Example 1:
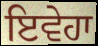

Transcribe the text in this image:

ਇਵੇਹਾ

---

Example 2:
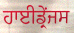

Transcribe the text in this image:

ਹਾਈਡ੍ਰੇਂਜਸ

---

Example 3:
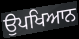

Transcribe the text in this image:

ਉਪਖਿਆਨ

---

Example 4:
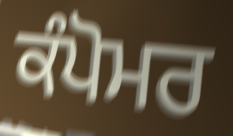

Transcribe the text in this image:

ਕੰਪੋਮਰ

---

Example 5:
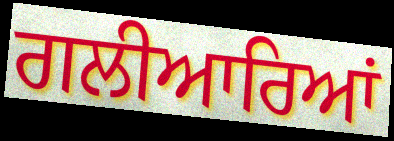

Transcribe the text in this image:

ਗਲੀਆਰਿਆਂ